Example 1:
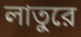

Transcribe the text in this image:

লাতুরে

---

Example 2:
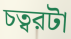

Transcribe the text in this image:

চত্বরটা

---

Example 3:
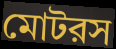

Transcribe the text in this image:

মোটরস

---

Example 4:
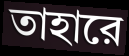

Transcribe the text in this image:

তাহারে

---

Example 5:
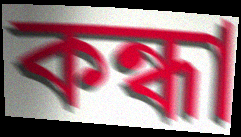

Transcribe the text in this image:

কন্ধা